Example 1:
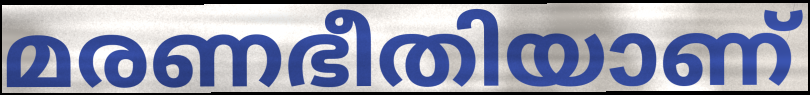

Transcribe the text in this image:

മരണഭീതിയാണ്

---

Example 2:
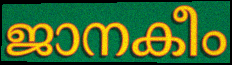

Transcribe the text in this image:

ജാനകീം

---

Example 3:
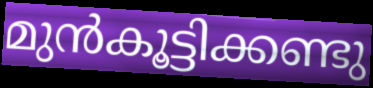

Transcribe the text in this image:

മുൻകൂട്ടിക്കണ്ടു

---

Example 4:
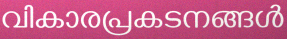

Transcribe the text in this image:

വികാരപ്രകടനങ്ങൾ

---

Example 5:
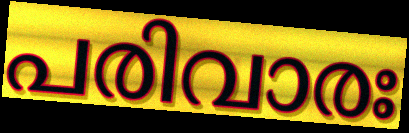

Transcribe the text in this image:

പരിവാരഃ